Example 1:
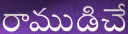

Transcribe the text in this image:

రాముడిచే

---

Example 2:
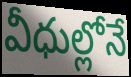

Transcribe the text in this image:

వీధుల్లోనే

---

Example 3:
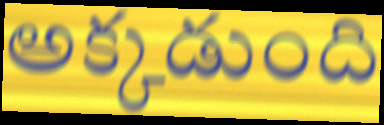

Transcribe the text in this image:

అక్కడుంది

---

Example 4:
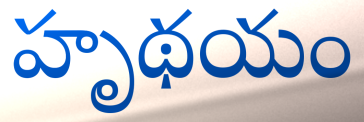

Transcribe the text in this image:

హృథయం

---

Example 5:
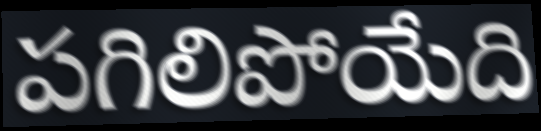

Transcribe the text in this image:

పగిలిపోయేది